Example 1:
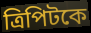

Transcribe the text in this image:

ত্রিপিটকে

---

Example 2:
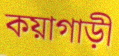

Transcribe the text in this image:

কয়াগাড়ী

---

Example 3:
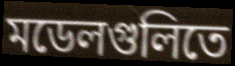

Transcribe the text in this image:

মডেলগুলিতে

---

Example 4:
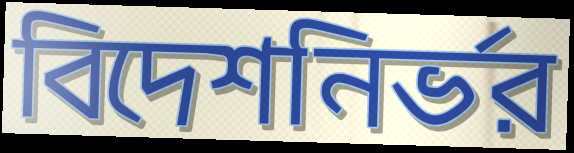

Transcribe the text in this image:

বিদেশনির্ভর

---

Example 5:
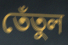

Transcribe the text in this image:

তেঁতুল